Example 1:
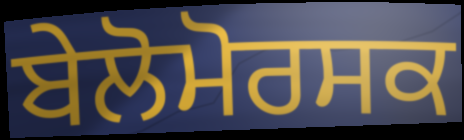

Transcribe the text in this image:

ਬੇਲੋਮੋਰਸਕ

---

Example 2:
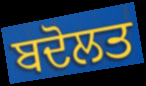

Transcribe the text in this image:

ਬਦੋਲਤ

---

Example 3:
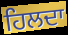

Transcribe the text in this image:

ਹਿਲਦਾ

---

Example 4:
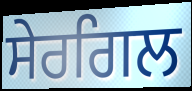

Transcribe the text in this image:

ਸੇਰਗਿਲ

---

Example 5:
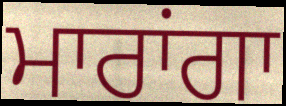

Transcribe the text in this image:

ਮਾਰਾਂਗਾ